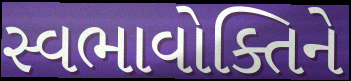
સ્વભાવોક્તિને